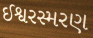
ઈશ્વરસ્મરણ